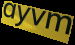
ayvm